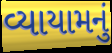
વ્યાયામનું